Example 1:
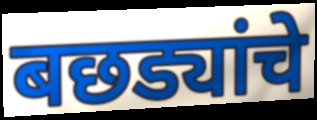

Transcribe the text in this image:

बछड्यांचे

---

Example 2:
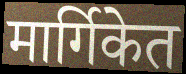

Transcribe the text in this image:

मार्गिकेत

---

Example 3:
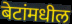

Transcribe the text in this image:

बेटांमधील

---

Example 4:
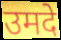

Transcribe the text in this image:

उमदे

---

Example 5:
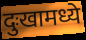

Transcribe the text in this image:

दुःखामध्ये